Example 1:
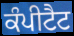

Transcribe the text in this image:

ਕੰਪੀਟੈਟ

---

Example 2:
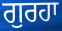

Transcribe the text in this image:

ਗੁਰਹਾ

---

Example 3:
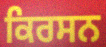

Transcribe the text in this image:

ਕਿਰਸਨ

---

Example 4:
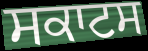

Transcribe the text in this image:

ਸਕਾਟਸ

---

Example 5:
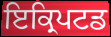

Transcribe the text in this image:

ਇਕ੍ਰਿਪਟਡ